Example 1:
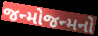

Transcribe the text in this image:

જન્મોજન્મનો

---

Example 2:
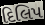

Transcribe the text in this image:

દિલિપ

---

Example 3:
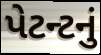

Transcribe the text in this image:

પેટન્ટનું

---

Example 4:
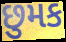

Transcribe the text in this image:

છુમક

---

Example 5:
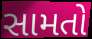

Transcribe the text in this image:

સામતો